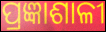
ପ୍ରଜ୍ଞାଶାଳୀ